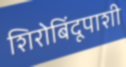
शिरोबिंदूपाशी